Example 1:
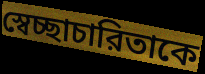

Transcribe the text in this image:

স্বেচ্ছাচারিতাকে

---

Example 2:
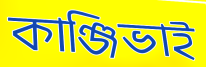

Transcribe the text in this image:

কাঞ্জিভাই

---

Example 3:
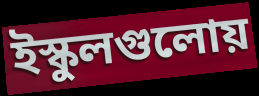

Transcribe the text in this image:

ইস্কুলগুলোয়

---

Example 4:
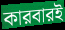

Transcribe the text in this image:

কারবারই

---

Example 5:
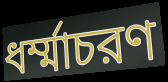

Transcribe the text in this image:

ধর্ম্মাচরণ